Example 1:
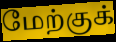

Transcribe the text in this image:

மேற்குக்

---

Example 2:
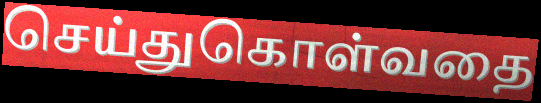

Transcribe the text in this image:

செய்துகொள்வதை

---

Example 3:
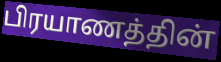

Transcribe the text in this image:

பிரயாணத்தின்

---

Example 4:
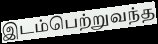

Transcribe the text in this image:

இடம்பெற்றுவந்த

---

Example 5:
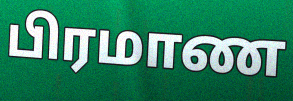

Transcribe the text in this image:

பிரமாண